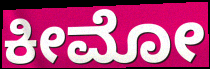
ಕೀಮೋ